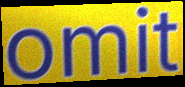
omit